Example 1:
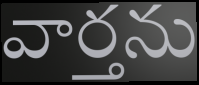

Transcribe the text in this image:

వార్తను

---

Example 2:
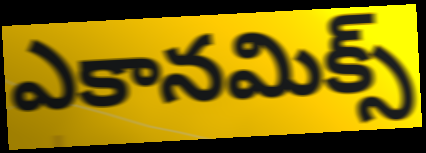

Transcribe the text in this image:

ఎకానమిక్స్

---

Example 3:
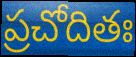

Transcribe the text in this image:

ప్రచోదితః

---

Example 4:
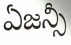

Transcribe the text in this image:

ఏజన్సీ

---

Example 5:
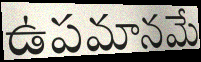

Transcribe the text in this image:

ఉపమానమే